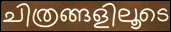
ചിത്രങ്ങളിലൂടെ